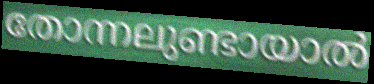
തോന്നലുണ്ടായാൽ